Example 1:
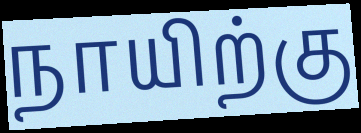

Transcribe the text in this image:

நாயிற்கு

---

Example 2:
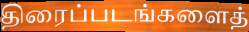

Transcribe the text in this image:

திரைப்படங்களைத்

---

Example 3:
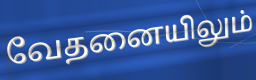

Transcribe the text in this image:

வேதனையிலும்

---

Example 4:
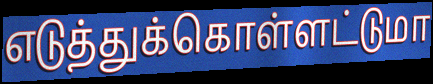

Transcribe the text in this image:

எடுத்துக்கொள்ளட்டுமா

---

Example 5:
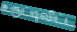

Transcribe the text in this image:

உருட்டிவிட்ட